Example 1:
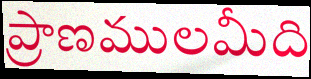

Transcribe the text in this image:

ప్రాణములమీది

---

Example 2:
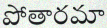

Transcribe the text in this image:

పోతారమా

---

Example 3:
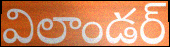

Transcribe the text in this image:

విలాండర్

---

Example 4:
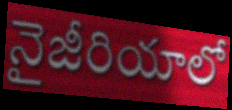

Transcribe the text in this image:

నైజీరియాలో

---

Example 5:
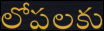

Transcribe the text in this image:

లోపలకు